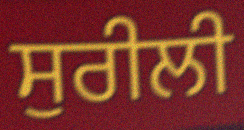
ਸੁਰੀਲੀ